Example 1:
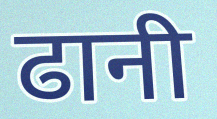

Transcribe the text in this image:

ढानी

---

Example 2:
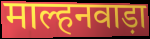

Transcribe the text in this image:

माल्हनवाड़ा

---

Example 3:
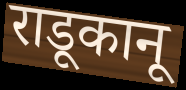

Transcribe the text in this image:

राडूकानू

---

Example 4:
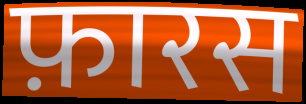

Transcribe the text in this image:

फ़ारस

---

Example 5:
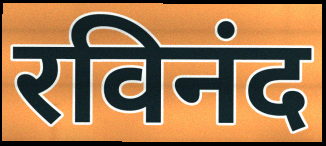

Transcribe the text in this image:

रविनंद